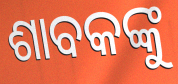
ଶାବକଙ୍କୁ